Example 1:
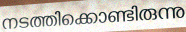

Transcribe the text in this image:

നടത്തിക്കൊണ്ടിരുന്നു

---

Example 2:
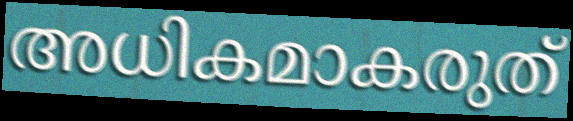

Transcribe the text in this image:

അധികമാകരുത്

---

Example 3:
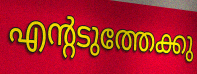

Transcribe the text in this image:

എന്റടുത്തേക്കു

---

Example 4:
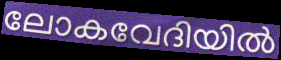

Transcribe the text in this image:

ലോകവേദിയിൽ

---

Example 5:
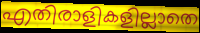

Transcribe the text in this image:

എതിരാളികളില്ലാതെ